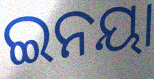
ଇନୟା